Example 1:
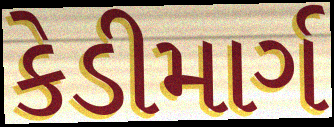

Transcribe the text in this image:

કેડીમાર્ગ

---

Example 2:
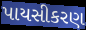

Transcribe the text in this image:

પાયસીકરણ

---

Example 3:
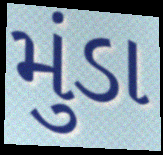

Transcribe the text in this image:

મુંડા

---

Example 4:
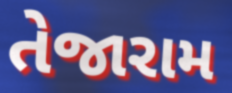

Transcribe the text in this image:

તેજારામ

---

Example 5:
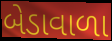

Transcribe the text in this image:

બેડાવાળા